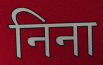
निना